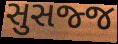
સુસજ્જ